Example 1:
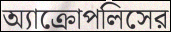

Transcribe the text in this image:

অ্যাক্রোপলিসের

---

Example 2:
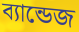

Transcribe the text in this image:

ব্যান্ডেজ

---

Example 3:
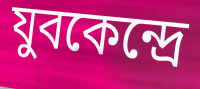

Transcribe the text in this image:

যুবকেন্দ্রে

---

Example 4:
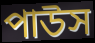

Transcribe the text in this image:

পাউস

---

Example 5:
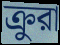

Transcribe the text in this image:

ক্রুরা